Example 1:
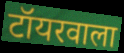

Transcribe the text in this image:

टॉयरवाला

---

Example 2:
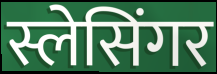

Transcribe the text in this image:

स्लेसिंगर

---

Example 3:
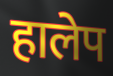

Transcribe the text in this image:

हालेप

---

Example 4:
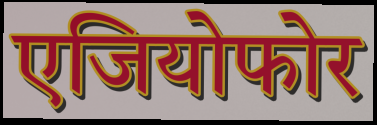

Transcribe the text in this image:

एजियोफोर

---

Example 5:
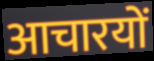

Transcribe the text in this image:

आचारयों